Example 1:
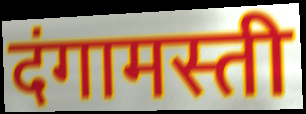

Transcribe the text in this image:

दंगामस्ती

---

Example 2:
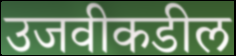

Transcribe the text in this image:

उजवीकडील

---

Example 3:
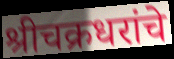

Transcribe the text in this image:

श्रीचक्रधरांचे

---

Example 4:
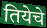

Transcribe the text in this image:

तियेचे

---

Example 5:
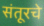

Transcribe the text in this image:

संतूरचे